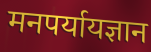
मनपर्यायज्ञान